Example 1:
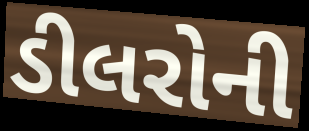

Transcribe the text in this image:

ડીલરોની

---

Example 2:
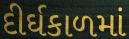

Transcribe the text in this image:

દીર્ઘકાળમાં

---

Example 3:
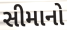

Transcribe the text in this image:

સીમાનો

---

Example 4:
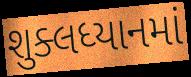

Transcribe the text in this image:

શુક્લધ્યાનમાં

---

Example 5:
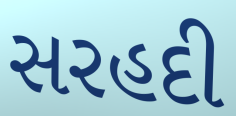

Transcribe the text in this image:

સરહદી